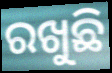
ରଖୁଛି